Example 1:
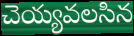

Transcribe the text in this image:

చెయ్యవలసిన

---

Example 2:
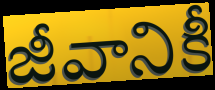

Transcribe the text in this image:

జీవానికీ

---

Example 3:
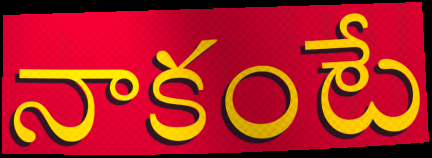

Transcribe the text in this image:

నాకంటే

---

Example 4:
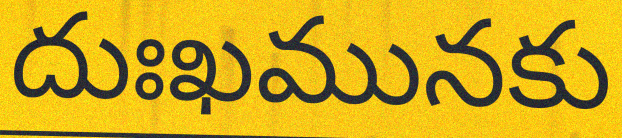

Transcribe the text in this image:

దుఃఖమునకు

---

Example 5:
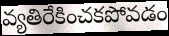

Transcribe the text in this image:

వ్యతిరేకించకపోవడం